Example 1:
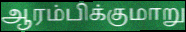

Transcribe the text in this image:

ஆரம்பிக்குமாறு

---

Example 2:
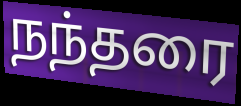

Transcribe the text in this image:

நந்தரை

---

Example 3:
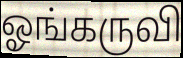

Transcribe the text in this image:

ஓங்கருவி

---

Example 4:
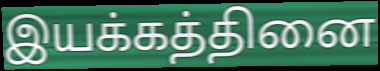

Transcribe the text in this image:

இயக்கத்தினை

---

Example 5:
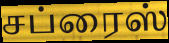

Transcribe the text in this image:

சப்ரைஸ்